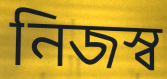
নিজস্ব